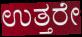
ಉತ್ತರೇ